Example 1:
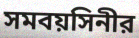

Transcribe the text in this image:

সমবয়সিনীর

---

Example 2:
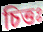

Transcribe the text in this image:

চিত্তঃ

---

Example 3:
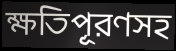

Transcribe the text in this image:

ক্ষতিপূরণসহ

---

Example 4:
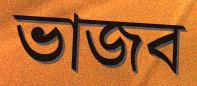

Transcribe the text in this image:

ভাজব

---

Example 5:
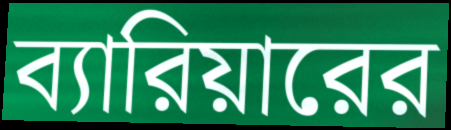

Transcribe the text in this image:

ব্যারিয়ারের